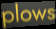
plows